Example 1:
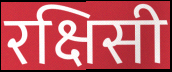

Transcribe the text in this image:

रक्षिसी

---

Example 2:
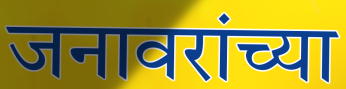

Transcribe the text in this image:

जनावरांच्या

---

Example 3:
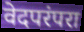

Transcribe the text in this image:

वेदपरंपरा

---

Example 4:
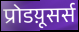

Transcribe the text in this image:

प्रोडय़ूसर्स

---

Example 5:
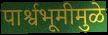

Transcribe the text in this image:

पार्श्वभूमीमुळे